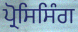
ਪ੍ਰੋਸਿਸਿੰਗ